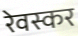
रेवस्कर